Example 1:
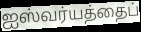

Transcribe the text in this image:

ஐஸ்வர்யத்தைப்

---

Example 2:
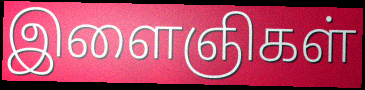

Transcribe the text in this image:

இளைஞிகள்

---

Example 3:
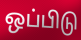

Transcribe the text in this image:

ஒப்பிடு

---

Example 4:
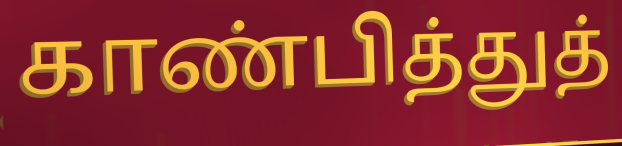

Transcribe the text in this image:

காண்பித்துத்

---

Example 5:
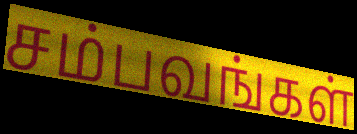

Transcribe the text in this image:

சம்பவங்கள்